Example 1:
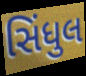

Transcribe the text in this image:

સિંધુલ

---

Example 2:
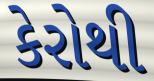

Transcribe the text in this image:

કેરોથી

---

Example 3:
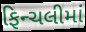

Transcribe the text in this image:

ફિન્ચલીમાં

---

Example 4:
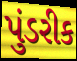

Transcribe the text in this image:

પુંડરીક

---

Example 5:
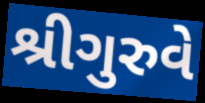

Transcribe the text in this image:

શ્રીગુરુવે